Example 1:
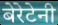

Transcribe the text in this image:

बेरेटेनी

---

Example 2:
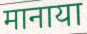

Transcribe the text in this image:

मानाया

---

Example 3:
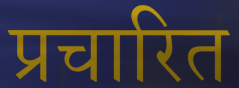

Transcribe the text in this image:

प्रचारित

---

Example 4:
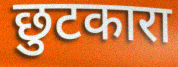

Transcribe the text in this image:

छुटकारा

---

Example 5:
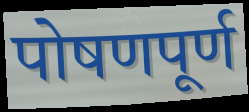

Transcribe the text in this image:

पोषणपूर्ण